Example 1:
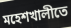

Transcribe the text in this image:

মহেশখালীতে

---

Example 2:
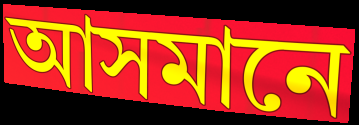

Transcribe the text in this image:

আসমানে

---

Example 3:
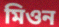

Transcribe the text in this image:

মিওন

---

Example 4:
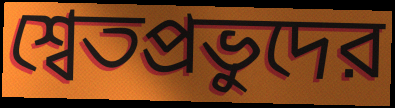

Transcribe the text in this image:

শ্বেতপ্রভুদের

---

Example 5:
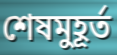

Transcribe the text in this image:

শেষমুহূর্ত